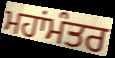
ਮਹਾਂਮੰਤਰ